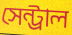
সেন্ট্রাল